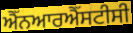
ਐੱਨਆਰਐੱਸਟੀਸੀ